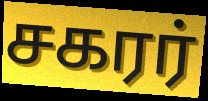
சகரர்